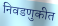
निवडणुकीत